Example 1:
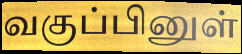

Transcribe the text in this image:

வகுப்பினுள்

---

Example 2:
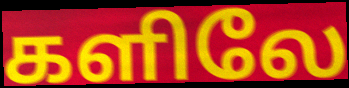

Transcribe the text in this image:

களிலே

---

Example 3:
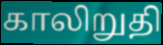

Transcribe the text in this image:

காலிறுதி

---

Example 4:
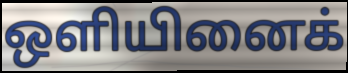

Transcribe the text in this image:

ஒளியினைக்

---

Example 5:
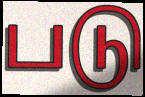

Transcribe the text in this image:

படு